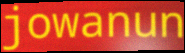
jowanun